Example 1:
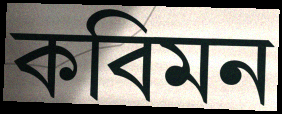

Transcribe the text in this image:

কবিমন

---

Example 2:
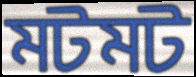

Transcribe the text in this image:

মটমট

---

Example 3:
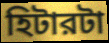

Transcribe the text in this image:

হিটারটা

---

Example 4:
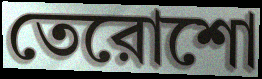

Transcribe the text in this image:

তেরোশো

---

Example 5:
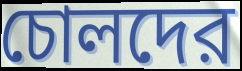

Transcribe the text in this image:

চোলদের